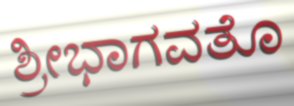
ಶ್ರೀಭಾಗವತೊ